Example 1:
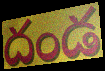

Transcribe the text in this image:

దండ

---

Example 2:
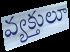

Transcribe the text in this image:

వ్యక్తులూ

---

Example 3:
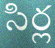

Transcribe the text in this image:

సిర్ల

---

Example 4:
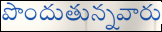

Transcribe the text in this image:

పొందుతున్నవారు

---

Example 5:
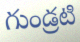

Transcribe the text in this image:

గుండ్రటి